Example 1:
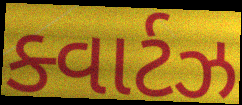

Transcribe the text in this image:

ક્વાર્ટઝ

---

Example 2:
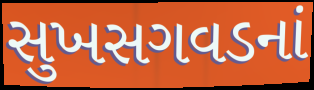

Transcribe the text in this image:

સુખસગવડનાં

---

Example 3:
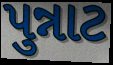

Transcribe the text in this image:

પુન્નાટ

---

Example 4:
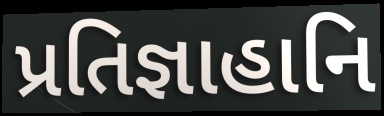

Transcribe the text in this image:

પ્રતિજ્ઞાહાનિ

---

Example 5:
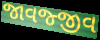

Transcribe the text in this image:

જાવજ્જીવ